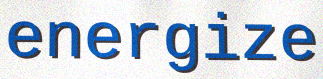
energize